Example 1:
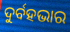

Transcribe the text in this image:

ଦୁର୍ବହଭାର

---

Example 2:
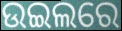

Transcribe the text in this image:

ଉଇଲରେ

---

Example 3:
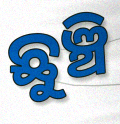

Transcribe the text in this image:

ଛୁଞ୍ଚି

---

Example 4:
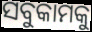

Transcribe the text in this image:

ସବୁକାମକୁ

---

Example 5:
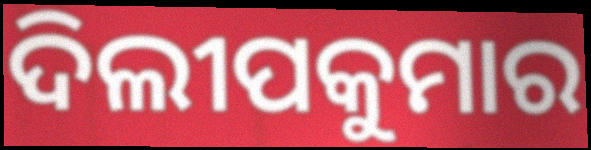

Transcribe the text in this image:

ଦିଲୀପକୁମାର